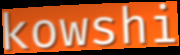
kowshi